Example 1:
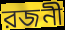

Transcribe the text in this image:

রজনী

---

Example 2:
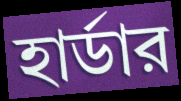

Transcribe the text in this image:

হার্ডার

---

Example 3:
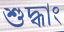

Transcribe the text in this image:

শুদ্ধাং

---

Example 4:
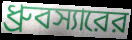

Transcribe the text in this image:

ধ্রুবস্যারের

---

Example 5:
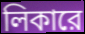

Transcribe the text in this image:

লিকারে